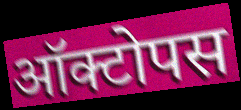
ऑक्टोपस